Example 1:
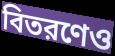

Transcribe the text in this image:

বিতরণেও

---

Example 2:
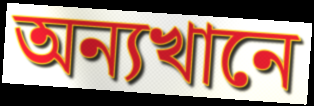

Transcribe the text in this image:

অন্যখানে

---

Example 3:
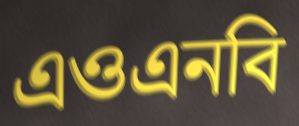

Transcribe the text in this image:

এওএনবি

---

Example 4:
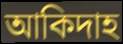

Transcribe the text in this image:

আকিদাহ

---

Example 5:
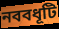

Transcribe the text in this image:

নববধূটি